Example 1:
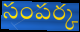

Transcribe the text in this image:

సంపర్క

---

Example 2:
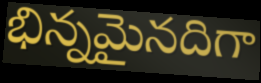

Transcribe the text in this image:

భిన్నమైనదిగా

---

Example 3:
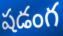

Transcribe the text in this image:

షడంగ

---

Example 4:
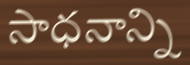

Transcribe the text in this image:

సాధనాన్ని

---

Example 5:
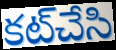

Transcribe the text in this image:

కట్‌చేసి